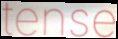
tense